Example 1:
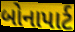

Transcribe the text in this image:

બોનાપાર્ટ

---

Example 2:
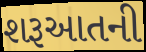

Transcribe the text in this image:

શરૂઆતની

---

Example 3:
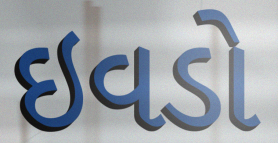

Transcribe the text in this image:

ઇવડો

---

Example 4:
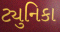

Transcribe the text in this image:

ટ્યુનિકા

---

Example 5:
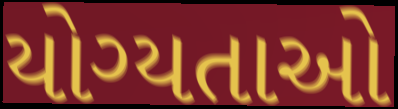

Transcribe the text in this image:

યોગ્યતાઓ